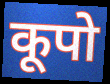
कूपो